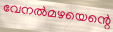
വേനൽമഴയെന്റെ